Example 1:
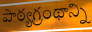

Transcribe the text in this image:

పాఠ్యగ్రంథాన్ని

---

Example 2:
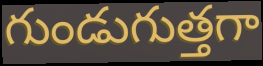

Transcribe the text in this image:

గుండుగుత్తగా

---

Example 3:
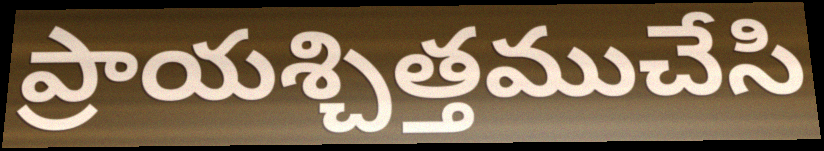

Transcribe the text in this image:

ప్రాయశ్చిత్తముచేసి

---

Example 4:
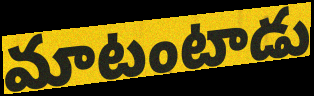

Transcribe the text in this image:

మాటంటాడు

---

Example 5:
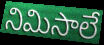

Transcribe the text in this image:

నిమిసాలే